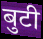
बुटी